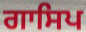
ਗਾਸਿਪ